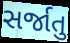
સર્જાતુ